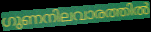
ഗുണനിലവാരത്തിൽ